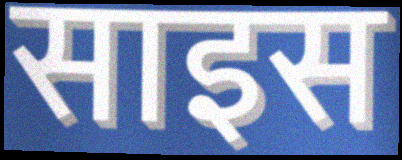
साइस